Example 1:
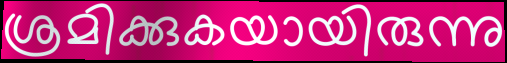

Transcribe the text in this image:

ശ്രമിക്കുകയായിരുന്നു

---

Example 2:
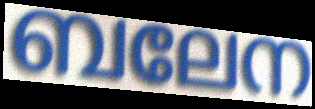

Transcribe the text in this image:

ബലേന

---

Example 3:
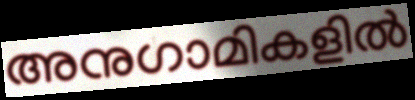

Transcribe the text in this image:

അനുഗാമികളിൽ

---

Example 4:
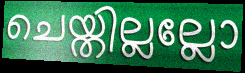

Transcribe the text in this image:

ചെയ്തില്ലല്ലോ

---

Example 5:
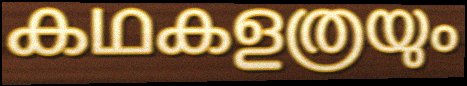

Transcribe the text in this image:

കഥകളത്രയും